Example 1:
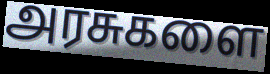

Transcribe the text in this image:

அரசுகளை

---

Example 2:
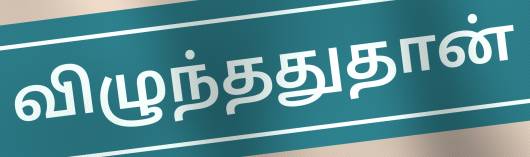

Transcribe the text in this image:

விழுந்ததுதான்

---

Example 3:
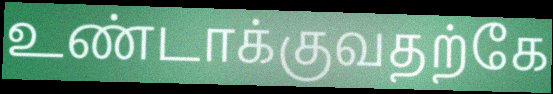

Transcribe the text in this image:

உண்டாக்குவதற்கே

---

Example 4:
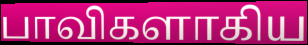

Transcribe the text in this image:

பாவிகளாகிய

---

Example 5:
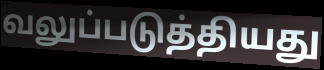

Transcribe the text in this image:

வலுப்படுத்தியது